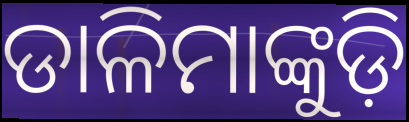
ଡାଳିମାଙ୍କୁଡ଼ି